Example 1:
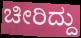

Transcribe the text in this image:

ಚೀರಿದ್ದು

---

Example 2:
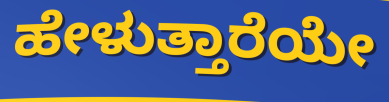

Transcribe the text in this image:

ಹೇಳುತ್ತಾರೆಯೇ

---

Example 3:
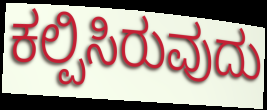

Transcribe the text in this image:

ಕಲ್ಪಿಸಿರುವುದು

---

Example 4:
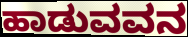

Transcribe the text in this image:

ಹಾಡುವವನ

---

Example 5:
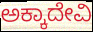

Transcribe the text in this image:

ಅಕ್ಕಾದೇವಿ